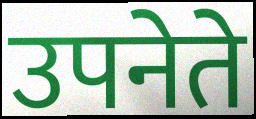
उपनेते